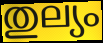
തുല്യം